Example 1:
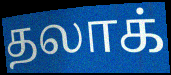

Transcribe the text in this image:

தலாக்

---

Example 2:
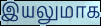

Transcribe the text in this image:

இயலுமாக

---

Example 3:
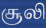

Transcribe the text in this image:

சூலி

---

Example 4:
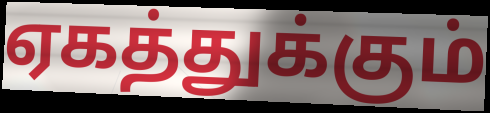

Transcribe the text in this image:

ஏகத்துக்கும்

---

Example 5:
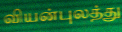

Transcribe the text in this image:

வியன்புலத்து